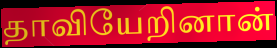
தாவியேறினான்